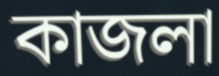
কাজলা